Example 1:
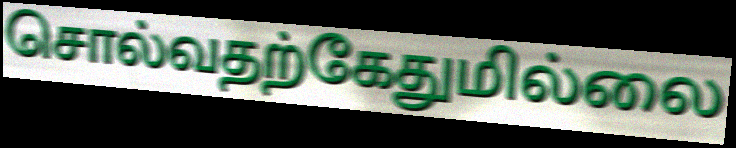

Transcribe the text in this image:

சொல்வதற்கேதுமில்லை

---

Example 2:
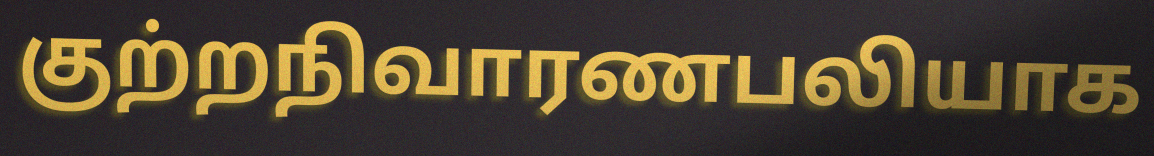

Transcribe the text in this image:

குற்றநிவாரணபலியாக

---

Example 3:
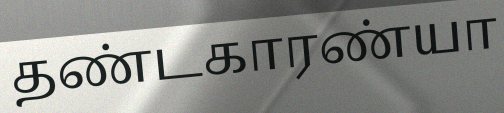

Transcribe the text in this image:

தண்டகாரண்யா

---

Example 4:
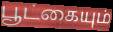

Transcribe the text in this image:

பூட்கையும்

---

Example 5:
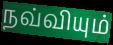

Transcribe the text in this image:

நவ்வியும்